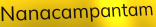
Nanacampantam